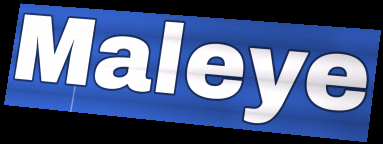
Maleye